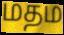
மதம